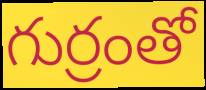
గుర్రంతో